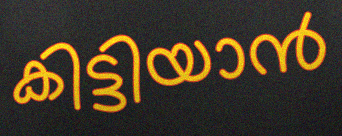
കിട്ടിയാൻ